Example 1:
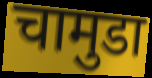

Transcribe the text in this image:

चामुडा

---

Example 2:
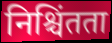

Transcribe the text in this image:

निश्चिंतता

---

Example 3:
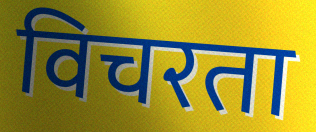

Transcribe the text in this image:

विचरता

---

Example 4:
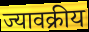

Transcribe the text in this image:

ज्यावक्रीय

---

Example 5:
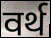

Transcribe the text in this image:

वर्थ